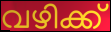
വഴിക്ക്